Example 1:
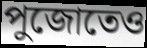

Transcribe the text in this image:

পুজোতেও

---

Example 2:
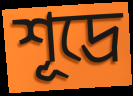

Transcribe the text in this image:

শূদ্রে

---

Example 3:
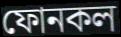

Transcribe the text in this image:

ফোনকল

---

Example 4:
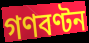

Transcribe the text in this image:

গণবণ্টন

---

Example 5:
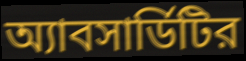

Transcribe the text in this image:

অ্যাবসার্ডিটির